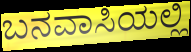
ಬನವಾಸಿಯಲ್ಲಿ